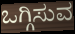
ಒಗ್ಗಿಸುವ